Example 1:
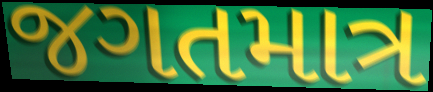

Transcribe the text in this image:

જગતમાત્ર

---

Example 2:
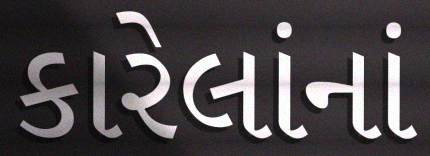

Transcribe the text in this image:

કારેલાંનાં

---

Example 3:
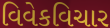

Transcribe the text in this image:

વિવેકવિચાર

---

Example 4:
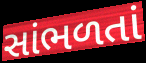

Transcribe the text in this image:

સાંભળતાં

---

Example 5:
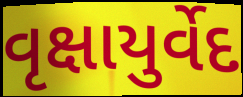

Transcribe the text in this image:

વૃક્ષાયુર્વેદ